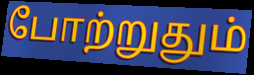
போற்றுதும்